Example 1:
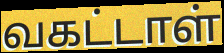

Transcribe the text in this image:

வகட்டாள்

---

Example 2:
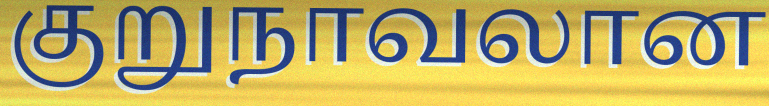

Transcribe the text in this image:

குறுநாவலான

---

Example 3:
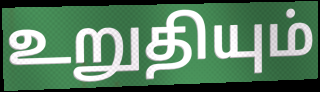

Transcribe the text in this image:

உறுதியும்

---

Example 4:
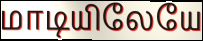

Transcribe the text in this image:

மாடியிலேயே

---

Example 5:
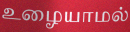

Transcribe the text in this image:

உழையாமல்